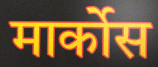
मार्कोस